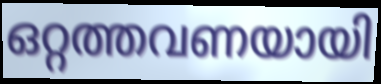
ഒറ്റത്തവണയായി